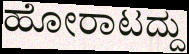
ಹೋರಾಟದ್ದು